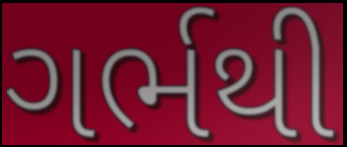
ગર્ભથી